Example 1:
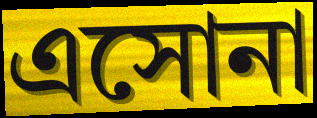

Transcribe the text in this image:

এসোনা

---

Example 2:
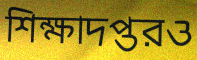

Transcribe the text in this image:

শিক্ষাদপ্তরও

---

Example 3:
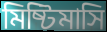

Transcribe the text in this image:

মিষ্টিমাসি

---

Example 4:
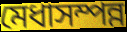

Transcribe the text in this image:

মেধাসম্পন্ন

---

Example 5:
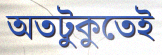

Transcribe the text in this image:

অতটুকুতেই